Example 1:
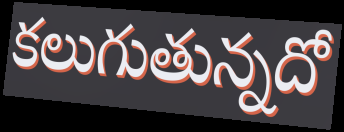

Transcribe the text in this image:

కలుగుతున్నదో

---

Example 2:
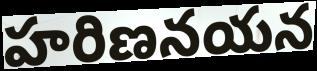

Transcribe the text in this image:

హరిణనయన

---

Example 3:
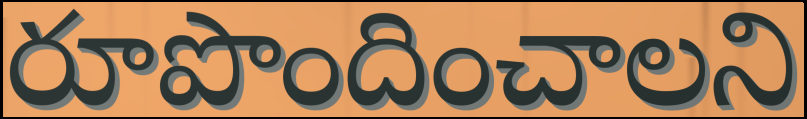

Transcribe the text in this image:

రూపొందించాలని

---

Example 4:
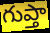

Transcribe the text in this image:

గుప్తా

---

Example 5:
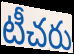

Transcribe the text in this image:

టీచరు